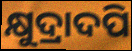
କ୍ଷୁଦ୍ରାଦପି